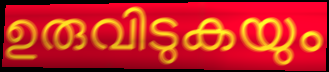
ഉരുവിടുകയും